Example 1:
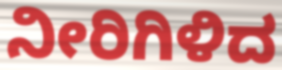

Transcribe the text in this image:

ನೀರಿಗಿಳಿದ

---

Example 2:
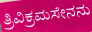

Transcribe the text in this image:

ತ್ರಿವಿಕ್ರಮಸೇನನು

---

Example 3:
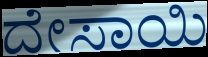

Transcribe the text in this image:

ದೇಸಾಯಿ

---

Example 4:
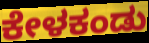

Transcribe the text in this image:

ಕೇಳಕಂಡು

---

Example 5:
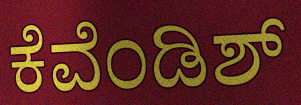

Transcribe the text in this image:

ಕೆವೆಂಡಿಶ್